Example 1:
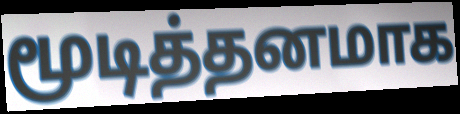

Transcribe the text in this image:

மூடித்தனமாக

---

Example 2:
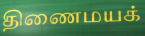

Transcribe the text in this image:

திணைமயக்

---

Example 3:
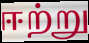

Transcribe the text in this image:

ஈற்று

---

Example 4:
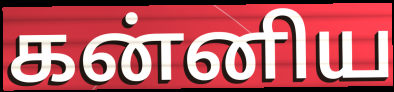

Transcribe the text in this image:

கன்னிய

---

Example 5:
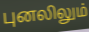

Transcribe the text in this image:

புனலிலும்